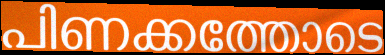
പിണക്കത്തോടെ